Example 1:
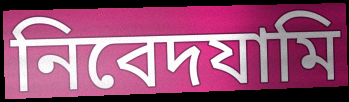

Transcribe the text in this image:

নিবেদযামি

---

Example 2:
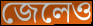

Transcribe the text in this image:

জেলেও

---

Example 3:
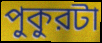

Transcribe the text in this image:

পুকুরটা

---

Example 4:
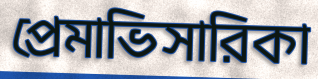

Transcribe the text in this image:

প্রেমাভিসারিকা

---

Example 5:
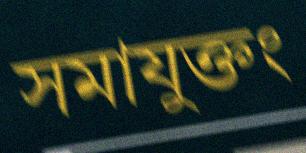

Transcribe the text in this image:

সমাযুক্তং